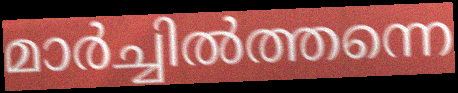
മാർച്ചിൽത്തന്നെ